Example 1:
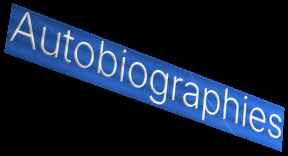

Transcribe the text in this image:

Autobiographies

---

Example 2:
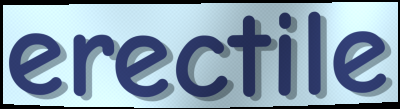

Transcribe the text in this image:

erectile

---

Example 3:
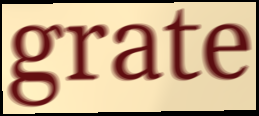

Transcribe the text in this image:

grate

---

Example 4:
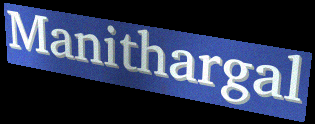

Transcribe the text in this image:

Manithargal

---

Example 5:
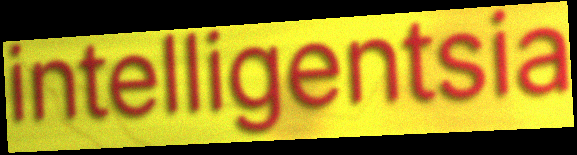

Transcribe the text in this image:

intelligentsia